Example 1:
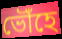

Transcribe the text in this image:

ভৌঁহে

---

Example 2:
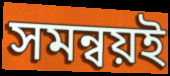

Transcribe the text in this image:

সমন্বয়ই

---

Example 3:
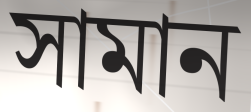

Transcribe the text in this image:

সামান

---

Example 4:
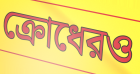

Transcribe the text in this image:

ক্রোধেরও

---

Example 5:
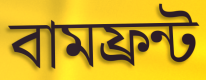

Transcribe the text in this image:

বামফ্রন্ট